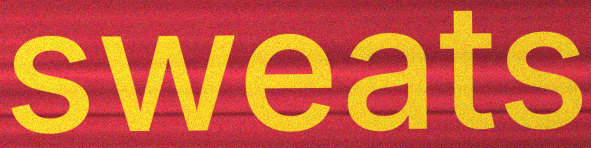
sweats